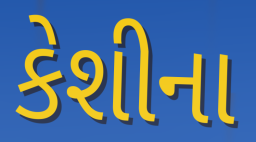
કેશીના